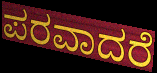
ಪರವಾದರೆ